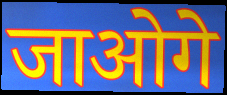
जाओगे